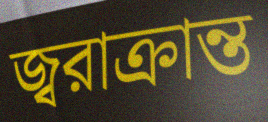
জ্বরাক্রান্ত